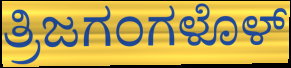
ತ್ರಿಜಗಂಗಳೊಳ್